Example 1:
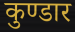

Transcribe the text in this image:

कुण्डार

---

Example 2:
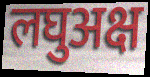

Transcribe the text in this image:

लघुअक्ष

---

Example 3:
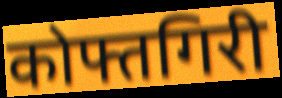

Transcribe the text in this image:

कोफ्तगिरी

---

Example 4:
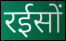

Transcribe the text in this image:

रईसों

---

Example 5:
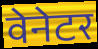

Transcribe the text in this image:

वेनेटर